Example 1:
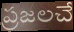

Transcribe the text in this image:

ప్రజలచే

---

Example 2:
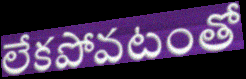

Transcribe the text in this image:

లేకపోవటంతో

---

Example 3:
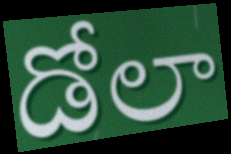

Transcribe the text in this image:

డోలా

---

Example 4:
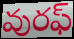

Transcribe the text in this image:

వురఫ్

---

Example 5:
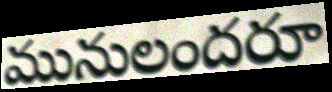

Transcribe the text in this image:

మునులందరూ